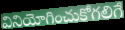
వినియోగించుకోగలిగే